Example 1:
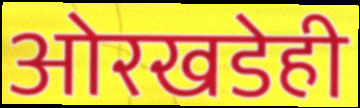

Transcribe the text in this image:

ओरखडेही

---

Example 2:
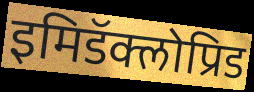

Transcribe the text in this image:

इमिडॅक्लोप्रिड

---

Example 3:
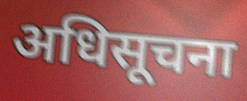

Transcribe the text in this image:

अधिसूचना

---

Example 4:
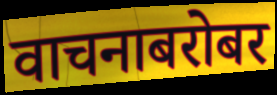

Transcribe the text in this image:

वाचनाबरोबर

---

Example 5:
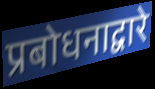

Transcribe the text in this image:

प्रबोधनाद्वारे